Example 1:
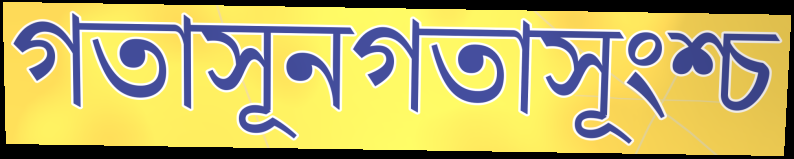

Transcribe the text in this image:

গতাসূনগতাসূংশ্চ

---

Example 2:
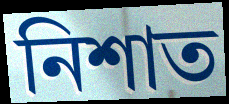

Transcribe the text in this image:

নিশাত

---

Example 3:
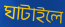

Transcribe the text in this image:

ঘাটাইলে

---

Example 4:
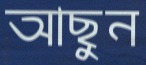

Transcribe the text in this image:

আছুন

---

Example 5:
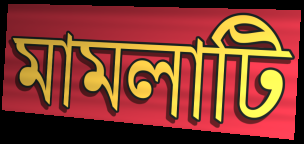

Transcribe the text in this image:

মামলাটি